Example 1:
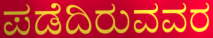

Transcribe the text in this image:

ಪಡೆದಿರುವವರ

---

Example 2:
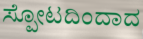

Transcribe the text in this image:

ಸ್ಪೋಟದಿಂದಾದ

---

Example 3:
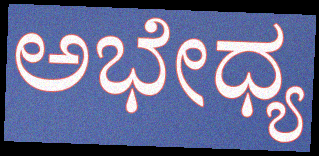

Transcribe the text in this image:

ಅಭೇಧ್ಯ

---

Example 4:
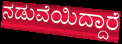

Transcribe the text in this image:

ನಡುವೆಯಿದ್ದಾರೆ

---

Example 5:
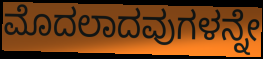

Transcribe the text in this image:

ಮೊದಲಾದವುಗಳನ್ನೇ